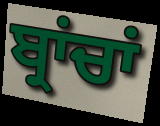
ਬ੍ਰਾਂਚਾਂ